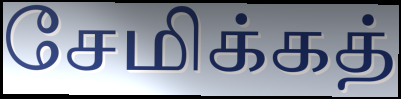
சேமிக்கத்